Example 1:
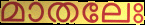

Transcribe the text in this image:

മാതലേഃ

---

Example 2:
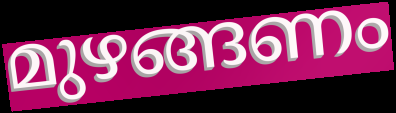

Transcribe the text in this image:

മുഴങ്ങണം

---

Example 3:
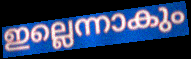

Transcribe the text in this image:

ഇല്ലെന്നാകും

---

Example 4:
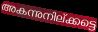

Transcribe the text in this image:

അകന്നുനില്ക്കട്ടെ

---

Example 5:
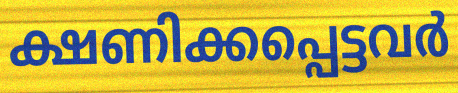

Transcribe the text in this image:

ക്ഷണിക്കപ്പെട്ടവർ